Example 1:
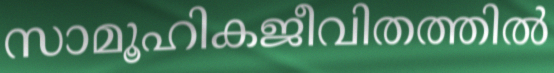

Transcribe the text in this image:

സാമൂഹികജീവിതത്തിൽ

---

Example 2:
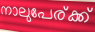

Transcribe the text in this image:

നാലുപേര്ക്ക്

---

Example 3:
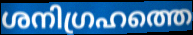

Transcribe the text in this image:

ശനിഗ്രഹത്തെ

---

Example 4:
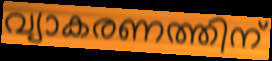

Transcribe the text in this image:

വ്യാകരണത്തിന്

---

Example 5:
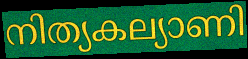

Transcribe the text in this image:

നിത്യകല്യാണി